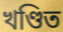
খণ্ডিত